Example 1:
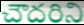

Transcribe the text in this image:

చౌదరిని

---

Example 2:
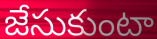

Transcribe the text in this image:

జేసుకుంటా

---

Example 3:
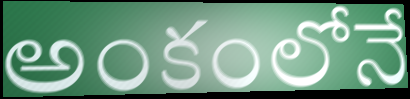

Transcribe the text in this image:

అంకంలోనే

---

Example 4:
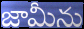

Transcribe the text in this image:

జామీను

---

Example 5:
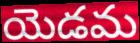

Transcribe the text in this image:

యెడమ